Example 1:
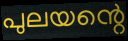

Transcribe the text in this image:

പുലയന്റെ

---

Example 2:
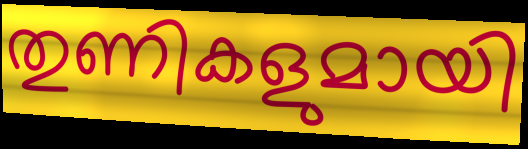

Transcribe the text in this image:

തുണികളുമായി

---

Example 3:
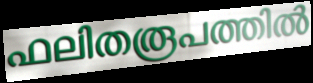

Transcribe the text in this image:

ഫലിതരൂപത്തിൽ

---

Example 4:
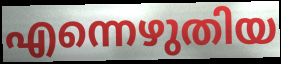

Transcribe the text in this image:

എന്നെഴുതിയ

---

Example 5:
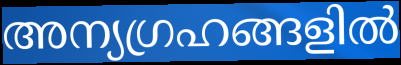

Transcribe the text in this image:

അന്യഗ്രഹങ്ങളിൽ